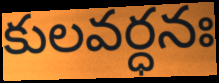
కులవర్ధనః